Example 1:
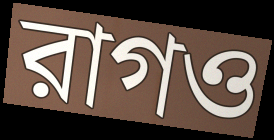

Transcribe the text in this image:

রাগও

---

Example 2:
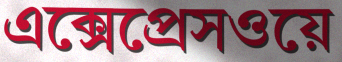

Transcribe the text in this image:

এক্সেপ্রেসওয়ে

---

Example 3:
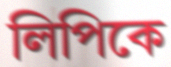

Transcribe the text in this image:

লিপিকে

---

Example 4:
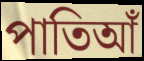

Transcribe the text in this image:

পাতিআঁ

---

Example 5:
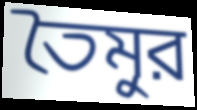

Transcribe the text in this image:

তৈমুর